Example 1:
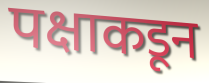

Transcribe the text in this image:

पक्षाकडून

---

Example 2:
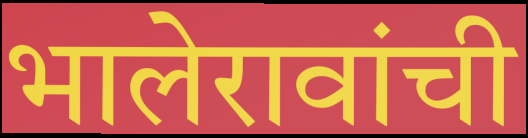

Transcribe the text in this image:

भालेरावांची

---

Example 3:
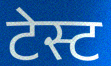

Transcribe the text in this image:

टेस्ट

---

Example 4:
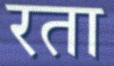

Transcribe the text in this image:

रता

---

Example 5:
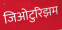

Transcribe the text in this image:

जिओटुरिझम